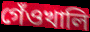
গেঁওখালি